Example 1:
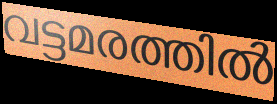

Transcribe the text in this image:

വട്ടമരത്തിൽ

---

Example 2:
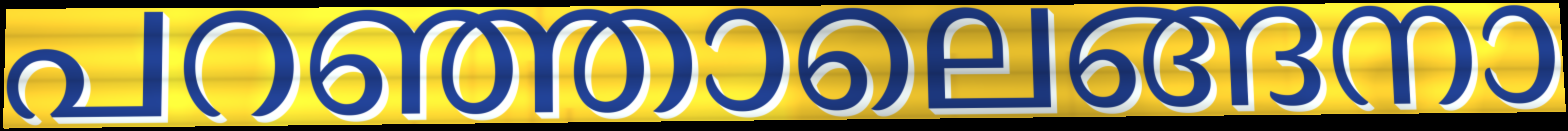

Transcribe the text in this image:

പറഞ്ഞാലെങ്ങനാ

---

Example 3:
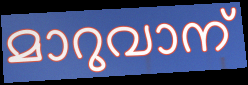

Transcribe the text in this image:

മാറുവാന്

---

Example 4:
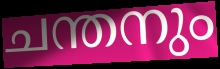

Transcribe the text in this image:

ചന്തനും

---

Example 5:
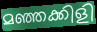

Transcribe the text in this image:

മഞ്ഞക്കിളി